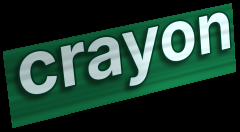
crayon